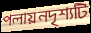
পলায়নদৃশ্যটি